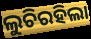
ଲୁଚିରହିଲା